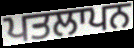
ਪਤਲਾਪਨ